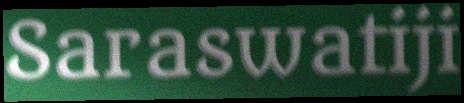
Saraswatiji